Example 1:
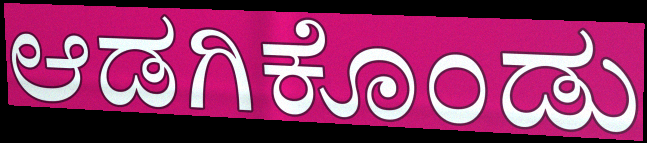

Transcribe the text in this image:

ಆಡಗಿಕೊಂಡು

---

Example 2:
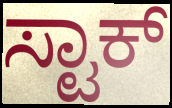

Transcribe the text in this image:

ಸ್ಟಾಕ್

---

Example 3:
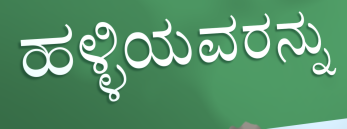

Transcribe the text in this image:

ಹಳ್ಳಿಯವರನ್ನು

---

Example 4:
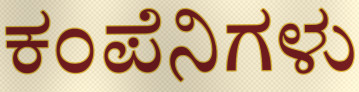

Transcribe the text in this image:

ಕಂಪೆನಿಗಳು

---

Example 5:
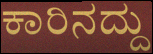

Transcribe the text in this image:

ಕಾರಿನದ್ದು